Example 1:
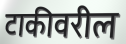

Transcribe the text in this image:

टाकीवरील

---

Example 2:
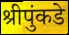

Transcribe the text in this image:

श्रीपुंकडे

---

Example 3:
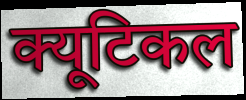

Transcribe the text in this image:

क्यूटिकल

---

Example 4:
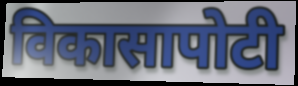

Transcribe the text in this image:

विकासापोटी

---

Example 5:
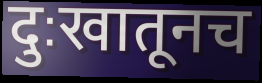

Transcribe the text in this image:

दुःखातूनच